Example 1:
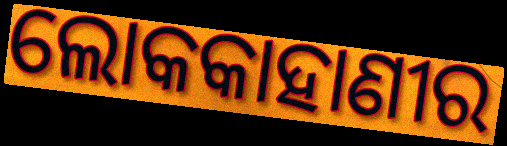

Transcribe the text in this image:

ଲୋକକାହାଣୀର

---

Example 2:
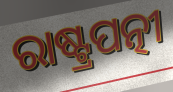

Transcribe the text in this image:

ରାଷ୍ଟ୍ରପତ୍ନୀ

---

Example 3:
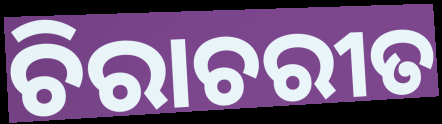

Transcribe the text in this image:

ଚିରାଚରୀତ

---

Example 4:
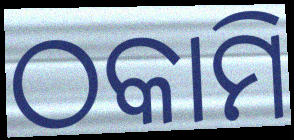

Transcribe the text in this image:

ଠକାମି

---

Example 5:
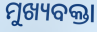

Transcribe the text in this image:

ମୁଖ୍ୟବକ୍ତା